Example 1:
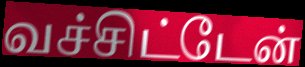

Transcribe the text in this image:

வச்சிட்டேன்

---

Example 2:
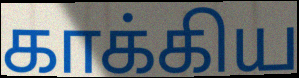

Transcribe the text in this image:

காக்கிய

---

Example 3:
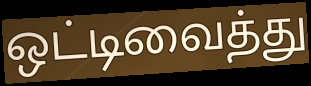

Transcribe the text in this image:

ஒட்டிவைத்து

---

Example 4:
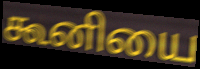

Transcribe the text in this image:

கூனியை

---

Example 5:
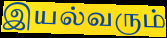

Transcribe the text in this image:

இயல்வரும்